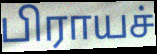
பிராயச்